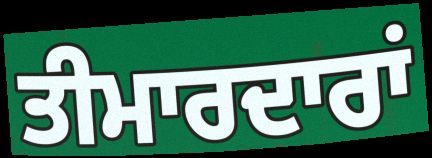
ਤੀਮਾਰਦਾਰਾਂ